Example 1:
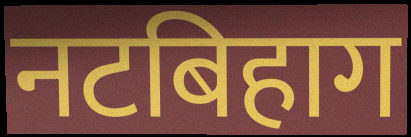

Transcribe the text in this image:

नटबिहाग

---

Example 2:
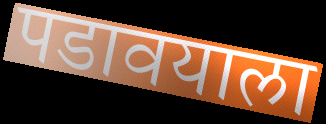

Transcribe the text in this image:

पडावयाला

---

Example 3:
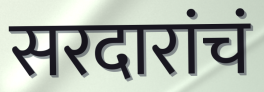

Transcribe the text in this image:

सरदारांचं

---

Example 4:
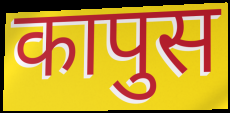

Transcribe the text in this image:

कापुस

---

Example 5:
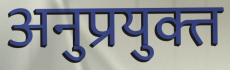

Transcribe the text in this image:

अनुप्रयुक्त